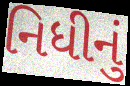
નિધીનું